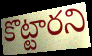
కొట్టారని